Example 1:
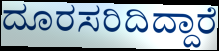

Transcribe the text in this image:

ದೂರಸರಿದಿದ್ದಾರೆ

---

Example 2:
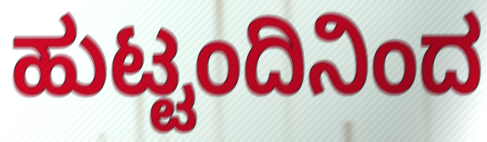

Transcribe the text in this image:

ಹುಟ್ಟಂದಿನಿಂದ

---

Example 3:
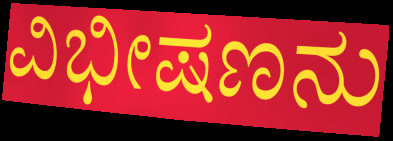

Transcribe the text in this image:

ವಿಭೀಷಣನು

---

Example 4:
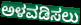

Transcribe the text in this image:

ಅಳವಡಿಸಲು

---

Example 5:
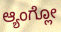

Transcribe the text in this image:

ಆ್ಯಂಗ್ಲೋ